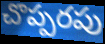
చొప్పరపు